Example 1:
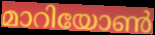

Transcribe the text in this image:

മാറിയോൺ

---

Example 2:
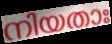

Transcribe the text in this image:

നിയതാഃ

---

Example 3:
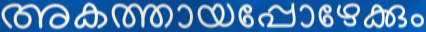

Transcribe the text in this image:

അകത്തായപ്പോഴേക്കും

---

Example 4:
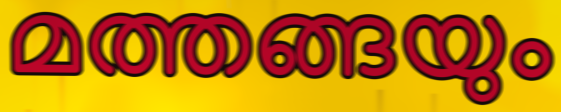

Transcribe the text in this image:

മത്തങ്ങയും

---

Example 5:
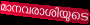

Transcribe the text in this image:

മാനവരാശിയുടെ